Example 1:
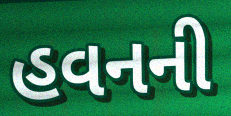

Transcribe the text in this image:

હવનની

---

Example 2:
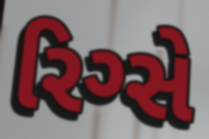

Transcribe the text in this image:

રિગ્સે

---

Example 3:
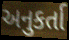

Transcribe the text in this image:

અનુકર્તા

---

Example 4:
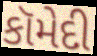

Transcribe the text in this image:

કૉમેદી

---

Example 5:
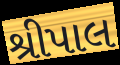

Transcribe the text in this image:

શ્રીપાલ